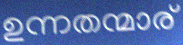
ഉന്നതന്മാര്